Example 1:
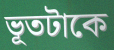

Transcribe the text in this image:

ভূতটাকে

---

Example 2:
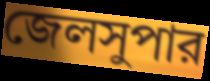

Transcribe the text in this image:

জেলসুপার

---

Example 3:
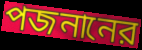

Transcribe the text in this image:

পজনানের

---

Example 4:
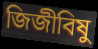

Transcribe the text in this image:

জিজীবিষু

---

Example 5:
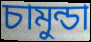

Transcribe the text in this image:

চামুন্ডা